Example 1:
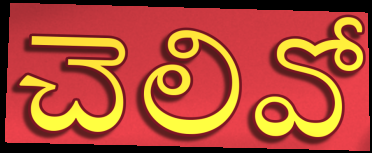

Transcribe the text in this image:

చెలివో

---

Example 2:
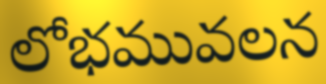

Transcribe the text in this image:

లోభమువలన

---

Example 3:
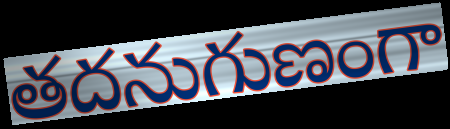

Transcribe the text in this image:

తదనుగుణంగా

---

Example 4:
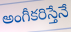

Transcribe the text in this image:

అంగీకరిస్తేనే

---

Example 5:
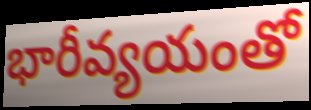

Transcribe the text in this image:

భారీవ్యయంతో